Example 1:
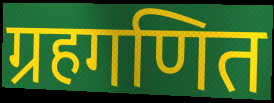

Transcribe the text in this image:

ग्रहगणित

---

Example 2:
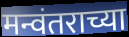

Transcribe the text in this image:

मन्वंतराच्या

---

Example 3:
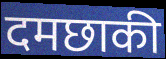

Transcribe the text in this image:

दमछाकी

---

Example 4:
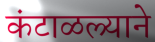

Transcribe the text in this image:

कंटाळल्याने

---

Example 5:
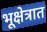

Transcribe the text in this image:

भूक्षेत्रात